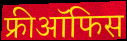
फ्रीऑफिस